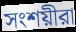
সংশয়ীরা